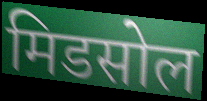
मिडसोल